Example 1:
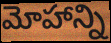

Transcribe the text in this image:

మోహాన్ని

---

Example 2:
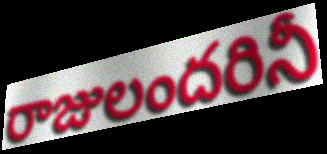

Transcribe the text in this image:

రాజులందరినీ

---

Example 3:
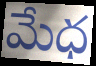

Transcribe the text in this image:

మేధ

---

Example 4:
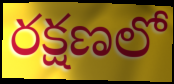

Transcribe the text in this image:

రక్షణలో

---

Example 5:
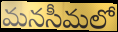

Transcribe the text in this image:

మనసీమలో